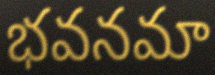
భవనమా